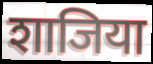
शाजिया